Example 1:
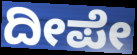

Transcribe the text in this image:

ದೀಪೇ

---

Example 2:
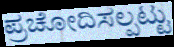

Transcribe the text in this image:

ಪ್ರಚೋದಿಸಲ್ಪಟ್ಟು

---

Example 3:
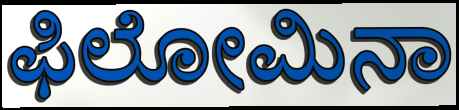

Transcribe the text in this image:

ಫಿಲೋಮಿನಾ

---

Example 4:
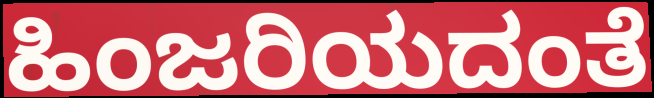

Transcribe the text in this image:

ಹಿಂಜರಿಯದಂತೆ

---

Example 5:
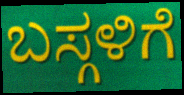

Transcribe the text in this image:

ಬಸ್ಗಳಿಗೆ